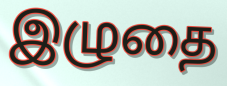
இழுதை